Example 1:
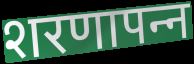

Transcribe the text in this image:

शरणापन्न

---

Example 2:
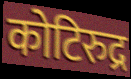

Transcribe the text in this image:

कोटिरुद्र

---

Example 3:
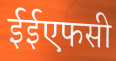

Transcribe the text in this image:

ईईएफसी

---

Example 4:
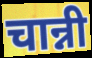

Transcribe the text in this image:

चान्नी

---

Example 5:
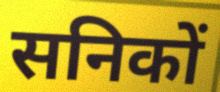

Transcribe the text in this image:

सनिकों